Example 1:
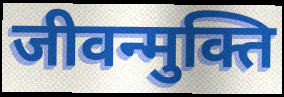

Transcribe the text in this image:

जीवन्मुक्ति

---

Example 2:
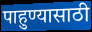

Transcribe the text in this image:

पाहुण्यासाठी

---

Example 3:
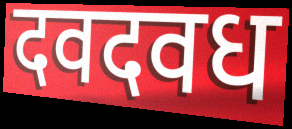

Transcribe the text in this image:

दवदवध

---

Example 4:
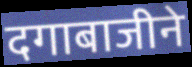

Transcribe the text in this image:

दगाबाजीने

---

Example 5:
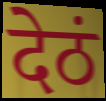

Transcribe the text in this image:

देठं